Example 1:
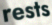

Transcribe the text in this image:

rests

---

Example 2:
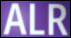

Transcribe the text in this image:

ALR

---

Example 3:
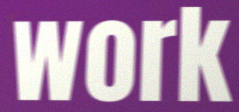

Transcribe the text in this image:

work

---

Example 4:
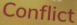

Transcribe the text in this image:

Conflict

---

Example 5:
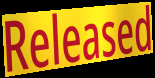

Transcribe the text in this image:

Released